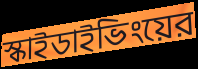
স্কাইডাইভিংয়ের